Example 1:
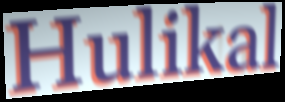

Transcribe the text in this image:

Hulikal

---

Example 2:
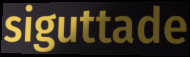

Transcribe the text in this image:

siguttade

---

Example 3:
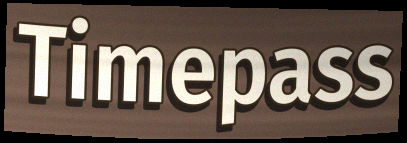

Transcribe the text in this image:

Timepass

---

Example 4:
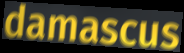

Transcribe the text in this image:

damascus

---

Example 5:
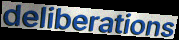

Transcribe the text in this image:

deliberations